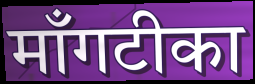
माँगटीका